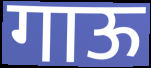
गाऊ